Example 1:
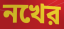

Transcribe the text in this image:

নখের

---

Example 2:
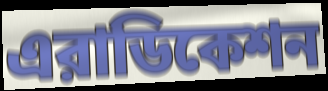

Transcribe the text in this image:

এরাডিকেশন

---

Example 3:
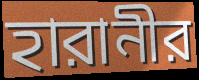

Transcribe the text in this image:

হারানীর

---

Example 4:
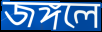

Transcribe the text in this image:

জঙ্গলে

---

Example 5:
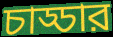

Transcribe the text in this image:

চাড্ডার